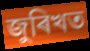
জুৰিখত